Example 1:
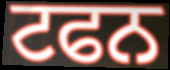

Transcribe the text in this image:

ਟਫਨ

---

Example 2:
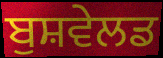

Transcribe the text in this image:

ਬੁਸ਼ਵੇਲਡ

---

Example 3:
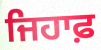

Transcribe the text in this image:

ਜਿਹਾਫ਼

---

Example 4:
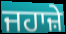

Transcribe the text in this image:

ਜਹਾਜ਼ੇ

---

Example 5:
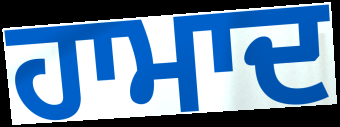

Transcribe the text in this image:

ਹਾਮਾਦ